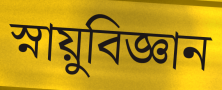
স্নায়ুবিজ্ঞান